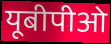
यूबीपीओ